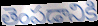
తెంపడానికి